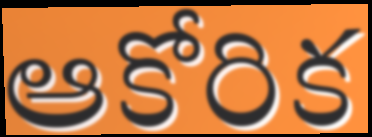
ఆకోరిక